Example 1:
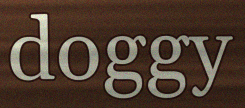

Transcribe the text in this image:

doggy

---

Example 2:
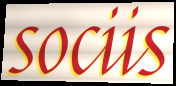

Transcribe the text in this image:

sociis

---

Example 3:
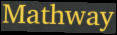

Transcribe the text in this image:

Mathway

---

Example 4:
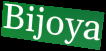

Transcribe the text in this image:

Bijoya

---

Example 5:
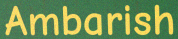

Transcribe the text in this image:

Ambarish